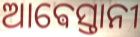
ଆଵେସ୍ତାନୀ